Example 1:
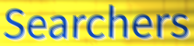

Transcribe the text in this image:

Searchers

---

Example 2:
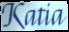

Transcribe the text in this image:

Katia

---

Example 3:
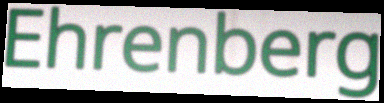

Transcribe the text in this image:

Ehrenberg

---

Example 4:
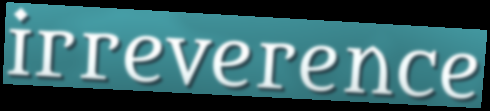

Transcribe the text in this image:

irreverence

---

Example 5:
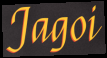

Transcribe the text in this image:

Jagoi